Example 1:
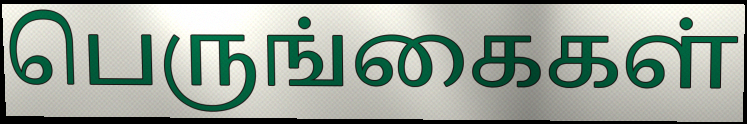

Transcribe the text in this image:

பெருங்கைகள்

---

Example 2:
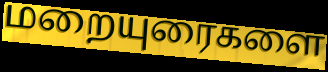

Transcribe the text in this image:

மறையுரைகளை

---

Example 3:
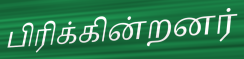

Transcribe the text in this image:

பிரிக்கின்றனர்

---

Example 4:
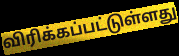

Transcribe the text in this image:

விரிக்கப்பட்டுள்ளது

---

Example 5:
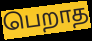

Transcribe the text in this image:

பெறாத